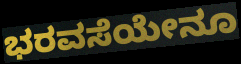
ಭರವಸೆಯೇನೂ